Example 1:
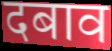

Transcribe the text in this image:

दबाव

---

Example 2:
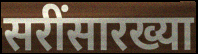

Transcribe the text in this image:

सरींसारख्या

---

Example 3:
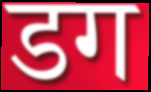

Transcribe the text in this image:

डग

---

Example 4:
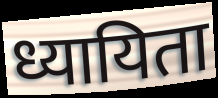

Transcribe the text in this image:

ध्यायिता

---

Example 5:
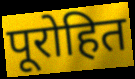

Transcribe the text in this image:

पूरोहित